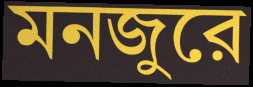
মনজুরে